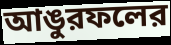
আঙুরফলের